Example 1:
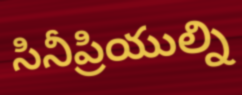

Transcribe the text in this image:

సినీప్రియుల్ని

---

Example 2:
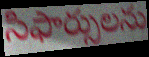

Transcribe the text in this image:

సిఫార్సులను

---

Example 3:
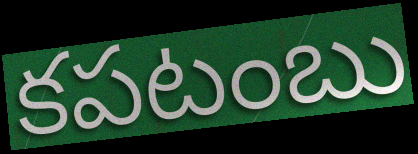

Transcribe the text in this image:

కపటంబు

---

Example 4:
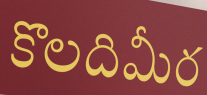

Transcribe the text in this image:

కొలదిమీర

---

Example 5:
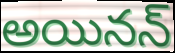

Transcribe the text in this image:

అయినన్